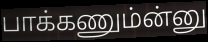
பாக்கணும்ன்னு